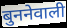
बुननेवाली